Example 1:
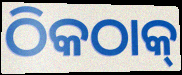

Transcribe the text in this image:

ଠିକଠାକ୍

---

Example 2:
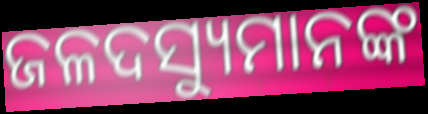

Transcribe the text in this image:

ଜଳଦସ୍ୟୁମାନଙ୍କ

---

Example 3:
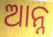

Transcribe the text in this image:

ଆନ୍ନ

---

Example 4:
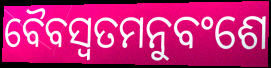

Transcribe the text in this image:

ବୈବସ୍ଵତମନୁବଂଶେ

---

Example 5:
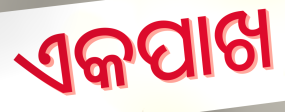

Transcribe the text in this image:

ଏକପାଖ